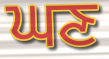
ਘਣ